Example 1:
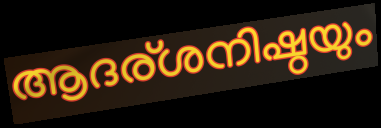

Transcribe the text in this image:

ആദര്ശനിഷ്ഠയും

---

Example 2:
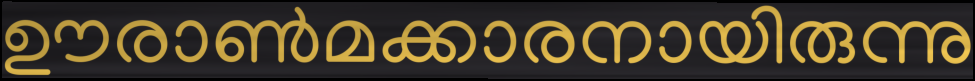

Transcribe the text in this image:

ഊരാൺമക്കാരനായിരുന്നു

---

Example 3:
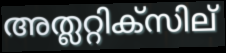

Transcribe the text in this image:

അത്ലറ്റിക്സില്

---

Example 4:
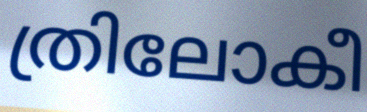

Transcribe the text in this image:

ത്രിലോകീ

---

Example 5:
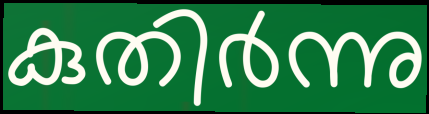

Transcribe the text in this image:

കുതിർന്നു